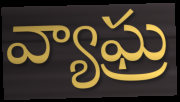
వ్యాఘ్ర